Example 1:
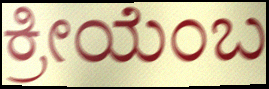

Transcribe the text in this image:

ಕ್ರೀಯೆಂಬ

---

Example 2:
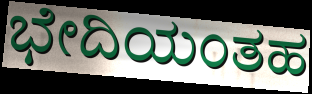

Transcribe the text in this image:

ಭೇದಿಯಂತಹ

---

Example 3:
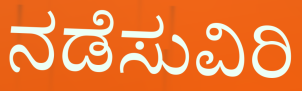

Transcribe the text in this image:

ನಡೆಸುವಿರಿ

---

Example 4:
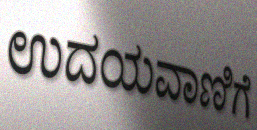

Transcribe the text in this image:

ಉದಯವಾಣಿಗೆ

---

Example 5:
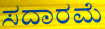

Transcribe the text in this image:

ಸದಾರಮೆ